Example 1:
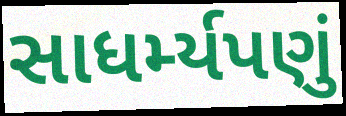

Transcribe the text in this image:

સાધર્મ્યપણું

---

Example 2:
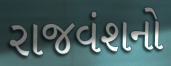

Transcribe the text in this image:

રાજવંશનો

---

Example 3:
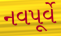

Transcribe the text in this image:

નવપૂર્વે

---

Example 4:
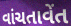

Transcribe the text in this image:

વાંચતાવેંત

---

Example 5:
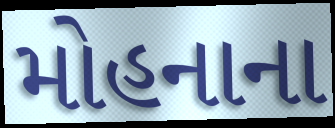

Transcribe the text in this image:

મોહનાના